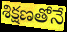
శిక్షణతోనే